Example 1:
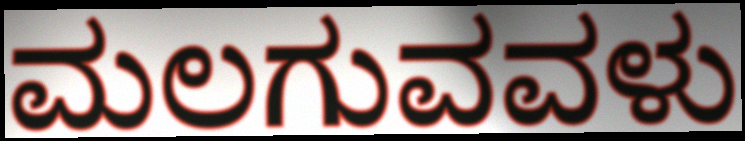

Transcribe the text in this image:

ಮಲಗುವವಳು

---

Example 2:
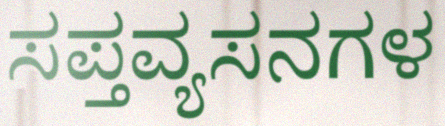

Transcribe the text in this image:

ಸಪ್ತವ್ಯಸನಗಳ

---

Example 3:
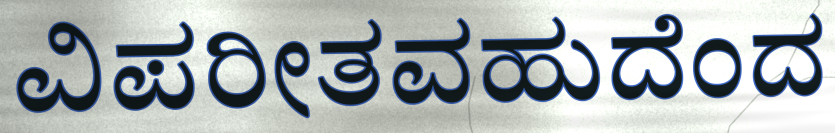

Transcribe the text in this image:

ವಿಪರೀತವಹುದೆಂದ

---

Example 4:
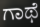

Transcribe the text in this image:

ಗಾಥೆ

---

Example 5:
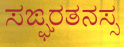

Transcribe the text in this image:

ಸಙ್ಘರತನಸ್ಸ